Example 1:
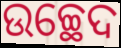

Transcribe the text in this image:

ଉଚ୍ଛେଦ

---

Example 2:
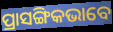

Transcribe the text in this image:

ପ୍ରାସଙ୍ଗିକଭାବେ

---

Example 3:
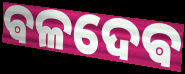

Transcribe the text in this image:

ଵଳଦେଵ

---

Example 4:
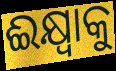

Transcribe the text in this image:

ଈକ୍ଷ୍ୱାକୁ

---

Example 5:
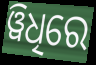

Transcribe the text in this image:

ୱିଧିରେ